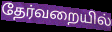
தேர்வறையில்